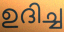
ഉദിച്ച